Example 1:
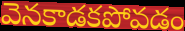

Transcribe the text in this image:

వెనకాడకపోవడం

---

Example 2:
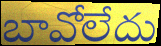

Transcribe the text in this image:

బావోలేదు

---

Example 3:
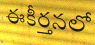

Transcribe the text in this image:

ఈకీర్తనలో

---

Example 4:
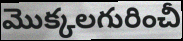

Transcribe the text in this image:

మొక్కలగురించీ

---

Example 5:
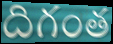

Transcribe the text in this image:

దిగంత